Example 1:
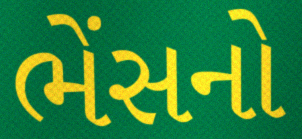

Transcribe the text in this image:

ભેંસનો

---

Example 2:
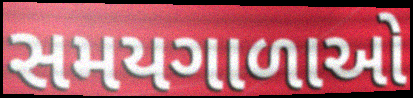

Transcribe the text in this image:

સમયગાળાઓ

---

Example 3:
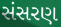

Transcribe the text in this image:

સંસરણ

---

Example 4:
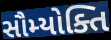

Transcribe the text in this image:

સૌમ્યોક્તિ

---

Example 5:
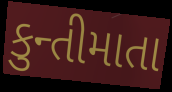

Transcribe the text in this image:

કુન્તીમાતા